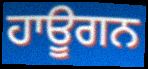
ਹਾਊਗਨ